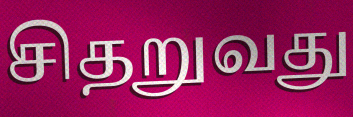
சிதறுவது